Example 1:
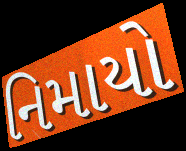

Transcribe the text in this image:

નિમાયો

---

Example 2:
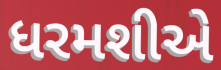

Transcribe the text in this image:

ધરમશીએ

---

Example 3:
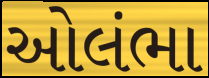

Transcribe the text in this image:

ઓલંભા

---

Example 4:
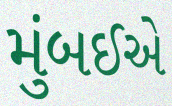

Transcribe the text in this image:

મુંબઈએ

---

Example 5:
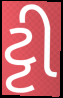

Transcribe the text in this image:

ટ્ટી